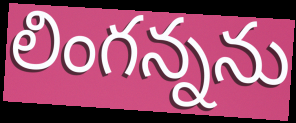
లింగన్నను